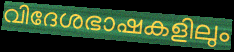
വിദേശഭാഷകളിലും